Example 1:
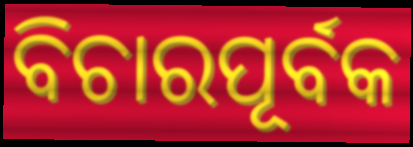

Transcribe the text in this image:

ବିଚାରପୂର୍ବକ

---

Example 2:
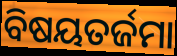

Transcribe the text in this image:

ବିଷୟତର୍ଜମା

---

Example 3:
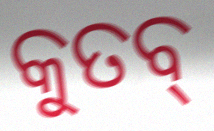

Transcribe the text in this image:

କୁତବ୍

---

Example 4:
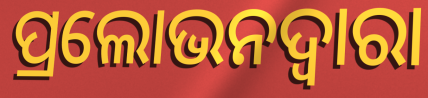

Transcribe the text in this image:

ପ୍ରଲୋଭନଦ୍ୱାରା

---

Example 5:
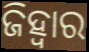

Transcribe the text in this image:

ଜିହ୍ଵାର